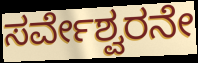
ಸರ್ವೇಶ್ವರನೇ